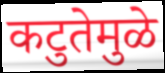
कटुतेमुळे